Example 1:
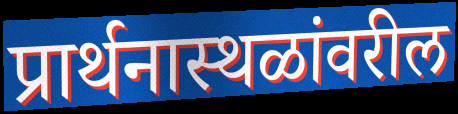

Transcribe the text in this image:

प्रार्थनास्थळांवरील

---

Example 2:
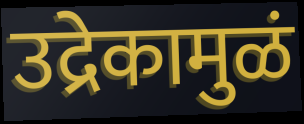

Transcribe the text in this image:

उद्रेकामुळं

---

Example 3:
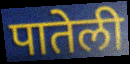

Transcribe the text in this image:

पातेली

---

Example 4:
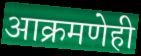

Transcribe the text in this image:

आक्रमणेही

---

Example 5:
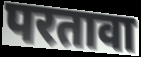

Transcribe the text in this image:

परतावा